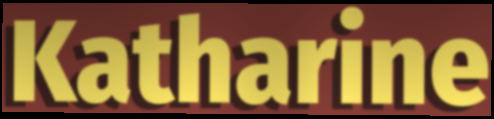
Katharine